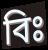
বিঃ